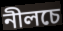
নীলচে